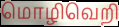
மொழிவெறி